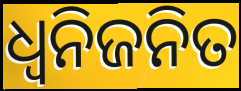
ଧ୍ଵନିଜନିତ